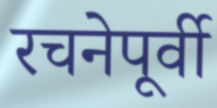
रचनेपूर्वी